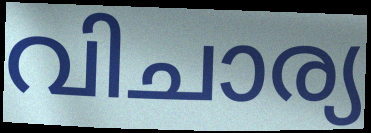
വിചാര്യ